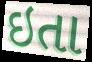
ઇતા